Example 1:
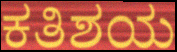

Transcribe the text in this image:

ಕತಿಶಯ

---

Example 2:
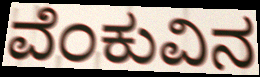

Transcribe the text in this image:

ವೆಂಕುವಿನ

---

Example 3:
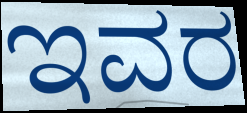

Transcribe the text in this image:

ಇವರ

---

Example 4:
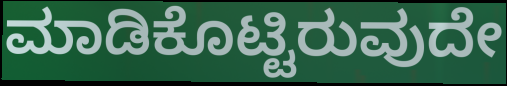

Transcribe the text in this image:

ಮಾಡಿಕೊಟ್ಟಿರುವುದೇ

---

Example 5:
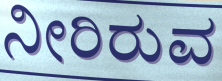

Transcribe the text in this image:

ನೀರಿರುವ